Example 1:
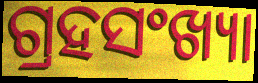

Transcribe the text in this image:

ଗ୍ରହସଂଖ୍ୟା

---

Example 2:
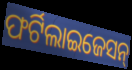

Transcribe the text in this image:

ଫର୍ଟିଲାଇଜେସନ୍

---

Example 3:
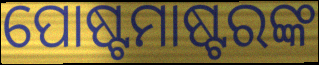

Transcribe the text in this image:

ପୋଷ୍ଟମାଷ୍ଟରଙ୍କ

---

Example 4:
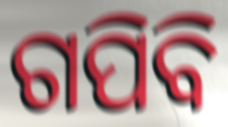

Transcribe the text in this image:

ଗପିବି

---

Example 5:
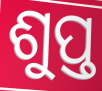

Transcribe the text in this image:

ଶୁପ୍ତ